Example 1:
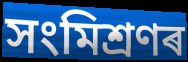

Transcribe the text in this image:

সংমিশ্ৰণৰ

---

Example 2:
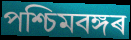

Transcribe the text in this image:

পশ্চিমবঙ্গৰ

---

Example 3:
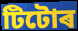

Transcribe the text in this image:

টিটোৰ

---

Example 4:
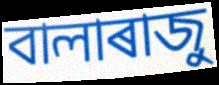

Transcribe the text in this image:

বালাৰাজু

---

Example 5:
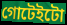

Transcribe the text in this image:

গোটেইটো